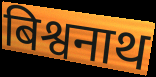
बिश्वनाथ